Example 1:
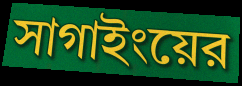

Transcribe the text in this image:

সাগাইংয়ের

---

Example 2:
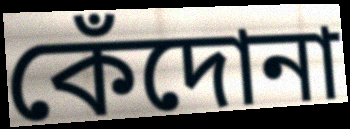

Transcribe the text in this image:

কেঁদোনা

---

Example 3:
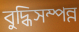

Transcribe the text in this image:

বুদ্ধিসম্পন্ন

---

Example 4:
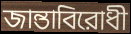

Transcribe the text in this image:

জান্তাবিরোধী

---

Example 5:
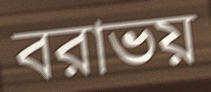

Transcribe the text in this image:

বরাভয়